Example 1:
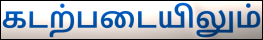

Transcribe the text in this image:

கடற்படையிலும்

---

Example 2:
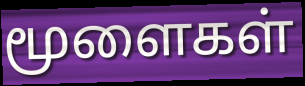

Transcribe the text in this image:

மூளைகள்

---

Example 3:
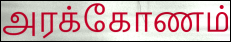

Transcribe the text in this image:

அரக்கோணம்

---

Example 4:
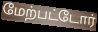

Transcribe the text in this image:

மேற்பட்டோர்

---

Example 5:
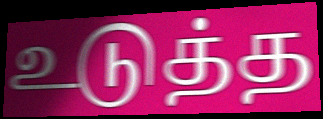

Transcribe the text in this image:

உடுத்த